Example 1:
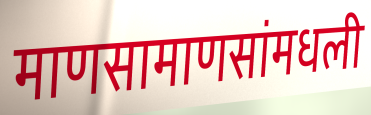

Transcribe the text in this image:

माणसामाणसांमधली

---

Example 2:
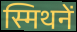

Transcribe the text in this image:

स्मिथनें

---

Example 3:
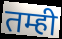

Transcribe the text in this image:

तम्ही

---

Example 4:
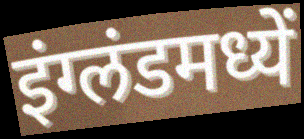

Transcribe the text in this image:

इंग्लंडमध्यें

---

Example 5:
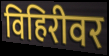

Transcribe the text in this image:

विहिरीवर